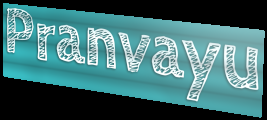
Pranvayu